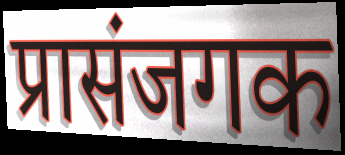
प्रासंजगक